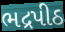
ભદ્રપીઠ